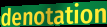
denotation